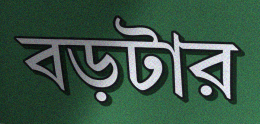
বড়টার